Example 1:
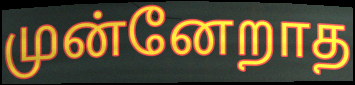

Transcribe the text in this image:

முன்னேறாத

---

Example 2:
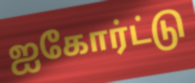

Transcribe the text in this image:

ஐகோர்ட்டு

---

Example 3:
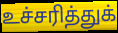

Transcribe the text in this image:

உச்சரித்துக்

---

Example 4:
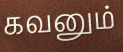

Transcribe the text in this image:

கவனும்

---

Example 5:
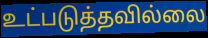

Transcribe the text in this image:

உட்படுத்தவில்லை